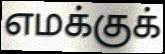
எமக்குக்